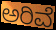
ಅರಿವೆ